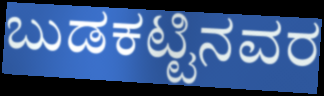
ಬುಡಕಟ್ಟಿನವರ